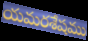
యమరశేషము